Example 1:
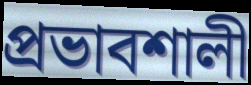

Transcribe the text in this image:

প্ৰভাবশালী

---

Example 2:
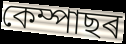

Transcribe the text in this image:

কেম্পাছৰ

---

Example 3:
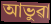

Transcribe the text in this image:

আভুৱা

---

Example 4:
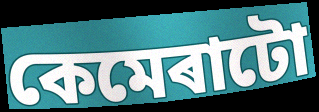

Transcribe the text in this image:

কেমেৰাটো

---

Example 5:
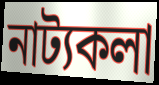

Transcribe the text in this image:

নাট্যকলা